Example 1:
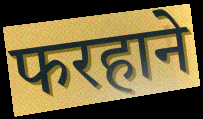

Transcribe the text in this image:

फरहाने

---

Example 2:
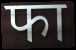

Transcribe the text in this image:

फा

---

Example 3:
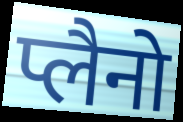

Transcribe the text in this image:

प्लैनो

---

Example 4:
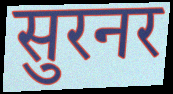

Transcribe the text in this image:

सुरनर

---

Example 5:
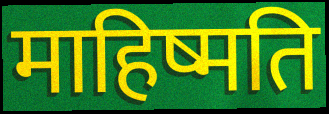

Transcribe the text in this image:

माहिष्मति